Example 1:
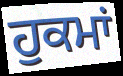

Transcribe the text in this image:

ਹੁਕਮਾਂ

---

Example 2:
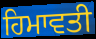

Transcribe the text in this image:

ਹਿਮਾਵਤੀ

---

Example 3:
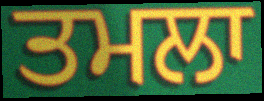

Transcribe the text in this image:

ਤਮਲਾ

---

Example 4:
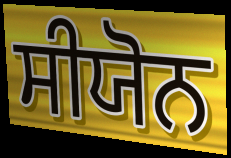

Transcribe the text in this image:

ਸੀਯੋਨ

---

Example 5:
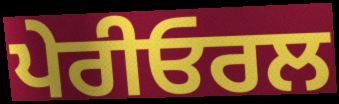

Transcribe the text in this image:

ਪੇਰੀਓਰਲ